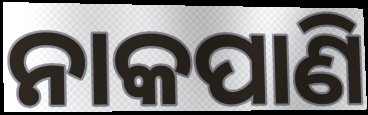
ନାକପାଣି